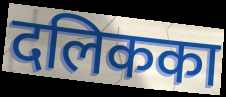
दलिकका